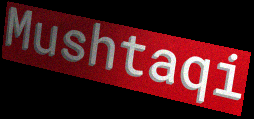
Mushtaqi